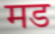
मड